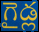
గైడ్ల